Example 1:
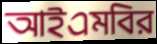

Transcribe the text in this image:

আইএমবির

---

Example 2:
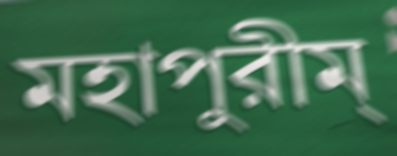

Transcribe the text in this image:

মহাপুরীম্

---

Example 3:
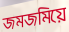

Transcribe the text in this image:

জমজমিয়ে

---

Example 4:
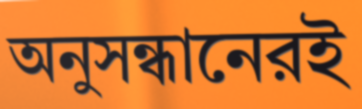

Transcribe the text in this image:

অনুসন্ধানেরই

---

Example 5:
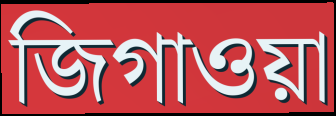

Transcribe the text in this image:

জিগাওয়া